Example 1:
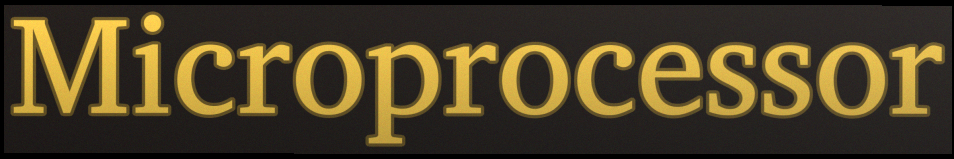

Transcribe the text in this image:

Microprocessor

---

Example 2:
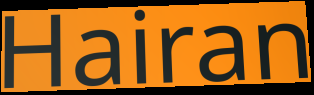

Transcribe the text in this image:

Hairan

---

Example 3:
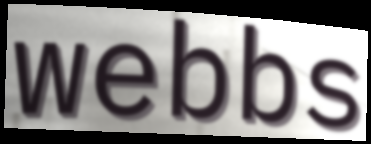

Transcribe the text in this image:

webbs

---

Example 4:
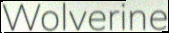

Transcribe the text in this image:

Wolverine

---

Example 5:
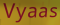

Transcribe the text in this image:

Vyaas